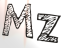
Mz